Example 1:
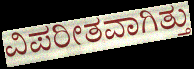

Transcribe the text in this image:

ವಿಪರೀತವಾಗಿತ್ತು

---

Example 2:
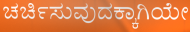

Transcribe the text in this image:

ಚರ್ಚಿಸುವುದಕ್ಕಾಗಿಯೇ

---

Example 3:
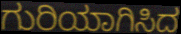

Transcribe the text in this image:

ಗುರಿಯಾಗಿಸಿದ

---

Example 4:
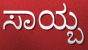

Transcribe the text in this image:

ಸಾಯ್ಬ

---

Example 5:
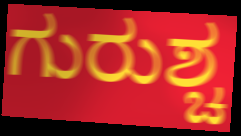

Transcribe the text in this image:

ಗುರುಶ್ಚ